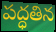
పద్ధతిన